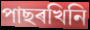
পাছৰখিনি